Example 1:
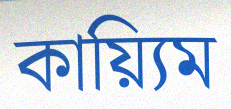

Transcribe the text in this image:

কায়্যিম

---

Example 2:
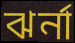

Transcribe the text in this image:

ঝর্না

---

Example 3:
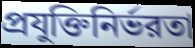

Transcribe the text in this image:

প্রযুক্তিনির্ভরতা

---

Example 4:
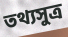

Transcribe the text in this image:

তথ্যসুত্র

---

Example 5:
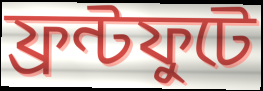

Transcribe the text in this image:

ফ্রন্টফুটে